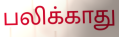
பலிக்காது